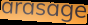
arasage